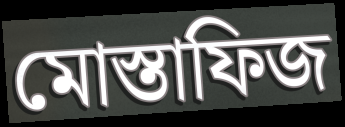
মোস্তাফিজ